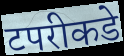
टपरीकडे